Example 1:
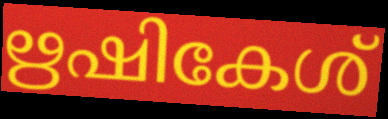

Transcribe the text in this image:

ഋഷികേശ്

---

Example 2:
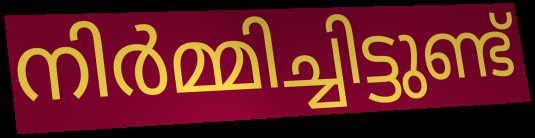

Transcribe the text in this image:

നിർമ്മിച്ചിട്ടുണ്ട്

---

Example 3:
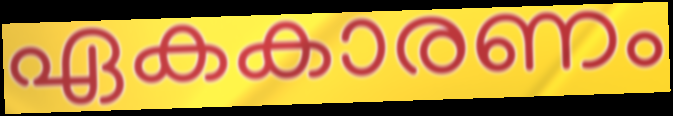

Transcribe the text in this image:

ഏകകാരണം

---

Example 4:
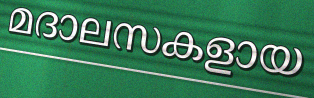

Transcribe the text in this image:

മദാലസകളായ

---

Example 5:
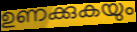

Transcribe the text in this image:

ഉണക്കുകയും